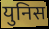
युनिस